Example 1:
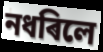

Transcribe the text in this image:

নধৰিলে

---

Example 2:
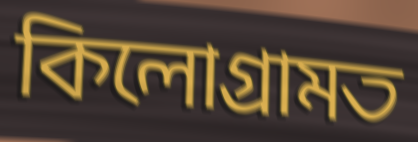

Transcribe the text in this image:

কিলোগ্ৰামত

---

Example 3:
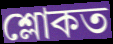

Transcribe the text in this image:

শ্লোকত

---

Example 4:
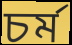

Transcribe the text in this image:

চৰ্ম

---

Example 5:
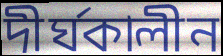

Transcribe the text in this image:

দীৰ্ঘকালীন